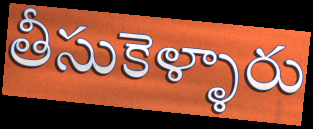
తీసుకెళ్ళారు